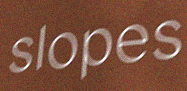
slopes